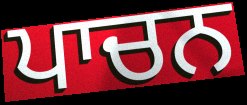
ਪਾਚਨ